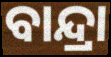
ବାନ୍ଦ୍ରା